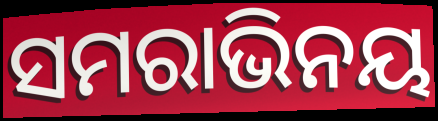
ସମରାଭିନୟ